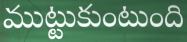
ముట్టుకుంటుంది